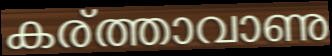
കര്ത്താവാണു